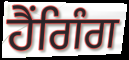
ਹੈਂਗਿੰਗ